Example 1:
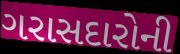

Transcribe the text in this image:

ગરાસદારોની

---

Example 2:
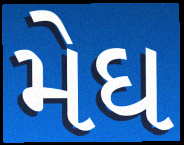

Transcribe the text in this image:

મેઘ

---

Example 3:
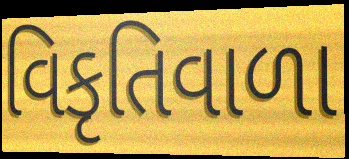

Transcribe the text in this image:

વિકૃતિવાળા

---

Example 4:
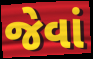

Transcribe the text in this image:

જેવાં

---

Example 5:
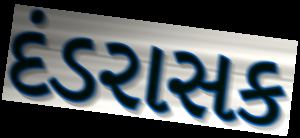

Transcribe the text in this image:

દંડરાસક